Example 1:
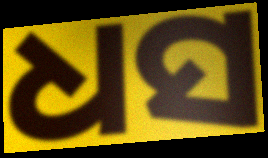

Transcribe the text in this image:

ଧସ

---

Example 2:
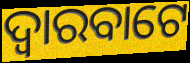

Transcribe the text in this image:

ଦ୍ୱାରବାଟେ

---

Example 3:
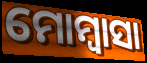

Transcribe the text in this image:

ମୋମ୍ବାସା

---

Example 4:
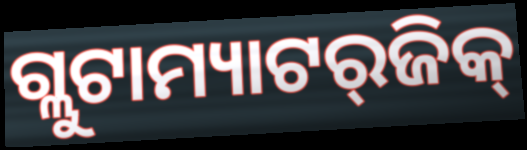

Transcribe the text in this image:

ଗ୍ଲୁଟାମ୍ୟାଟର୍‌ଜିକ୍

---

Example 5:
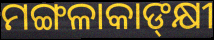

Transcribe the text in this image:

ମଙ୍ଗଳାକାଙ୍‍କ୍ଷୀ